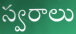
స్వరాలు